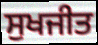
ਸੁਖਜੀਤ